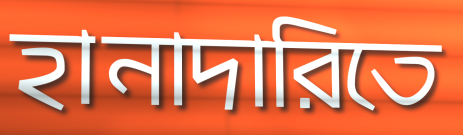
হানাদারিতে